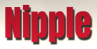
Nipple